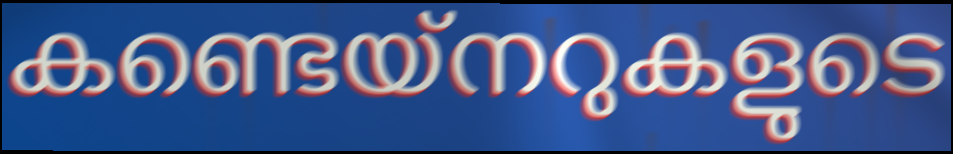
കണ്ടെയ്നറുകളുടെ